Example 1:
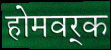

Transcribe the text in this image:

होमवर्क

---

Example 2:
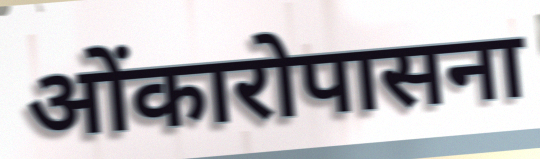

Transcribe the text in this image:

ओंकारोपासना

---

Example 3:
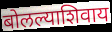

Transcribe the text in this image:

बोलल्याशिवाय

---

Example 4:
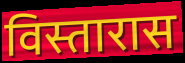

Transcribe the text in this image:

विस्तारास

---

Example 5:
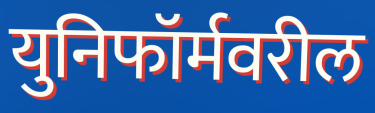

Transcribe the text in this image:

युनिफॉर्मवरील